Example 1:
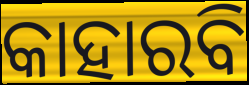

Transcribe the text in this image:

କାହାରବି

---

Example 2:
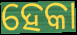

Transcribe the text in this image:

ହେକା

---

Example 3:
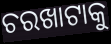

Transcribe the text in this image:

ଚରଖାଟାକୁ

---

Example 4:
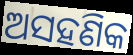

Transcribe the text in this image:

ଅସହଣିକ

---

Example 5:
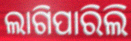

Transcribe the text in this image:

ଲାଗିପାରିଲି